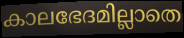
കാലഭേദമില്ലാതെ